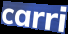
carri